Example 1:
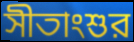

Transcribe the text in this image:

সীতাংশুর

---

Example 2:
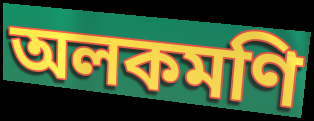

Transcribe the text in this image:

অলকমণি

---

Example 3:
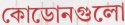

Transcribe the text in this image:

কোডোনগুলো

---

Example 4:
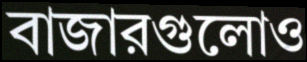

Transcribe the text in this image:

বাজারগুলোও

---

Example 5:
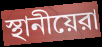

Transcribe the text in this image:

স্থানীয়েরা